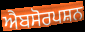
ਐਬਸੋਰਪਸ਼ਨ